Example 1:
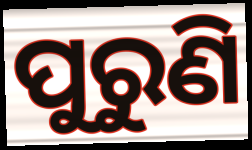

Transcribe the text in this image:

ପୁରୁଣି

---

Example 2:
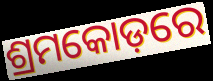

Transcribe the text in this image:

ଶ୍ରମକୋଡ଼ରେ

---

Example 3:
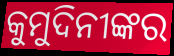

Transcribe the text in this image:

କୁମୁଦିନୀଙ୍କର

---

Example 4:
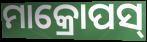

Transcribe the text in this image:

ମାକ୍ରୋପସ୍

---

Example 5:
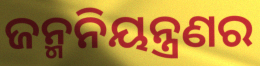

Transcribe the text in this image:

ଜନ୍ମନିୟନ୍ତ୍ରଣର